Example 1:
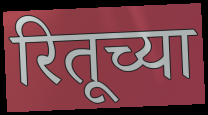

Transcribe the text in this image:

रितूच्या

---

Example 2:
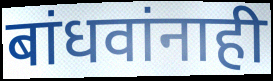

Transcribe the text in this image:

बांधवांनाही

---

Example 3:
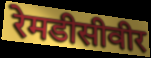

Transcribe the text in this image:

रेमडीसीवीर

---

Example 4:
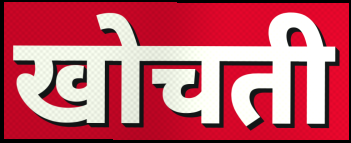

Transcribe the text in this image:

खोचती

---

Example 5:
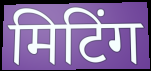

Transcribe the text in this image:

मिटिंग